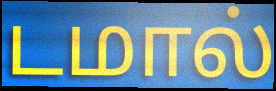
டமால்